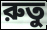
রুতু